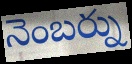
నెంబర్ను